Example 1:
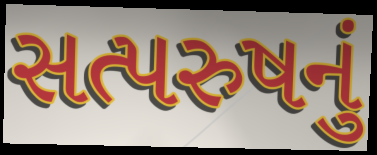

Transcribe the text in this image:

સત્પરુષનું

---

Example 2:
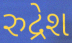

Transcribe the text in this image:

રુદ્રેશ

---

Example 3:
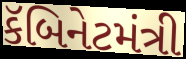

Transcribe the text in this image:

કૅબિનેટમંત્રી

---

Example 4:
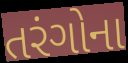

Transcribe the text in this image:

તરંગોના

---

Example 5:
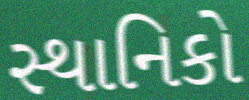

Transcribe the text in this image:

સ્થાનિકો